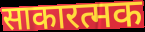
साकारत्मक